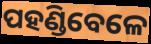
ପହଣ୍ଡିବେଳେ